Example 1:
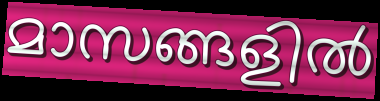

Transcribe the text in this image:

മാസങ്ങളിൽ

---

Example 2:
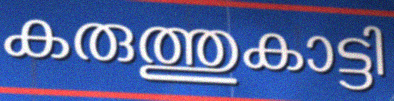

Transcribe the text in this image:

കരുത്തുകാട്ടി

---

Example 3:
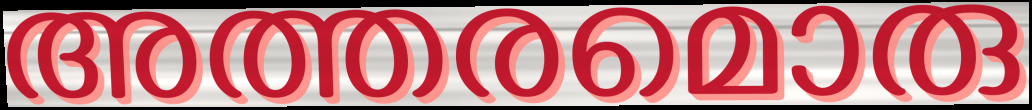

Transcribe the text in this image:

അത്തരമൊരു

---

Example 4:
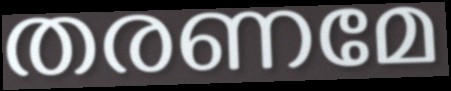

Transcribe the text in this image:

തരണമേ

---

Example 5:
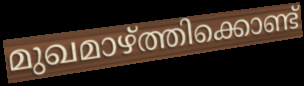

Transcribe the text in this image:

മുഖമാഴ്ത്തിക്കൊണ്ട്